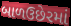
બાળઉછેરમાં